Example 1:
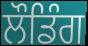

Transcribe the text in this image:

ਲੌਡਿੰਗ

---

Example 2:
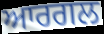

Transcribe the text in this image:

ਆਰਗਲ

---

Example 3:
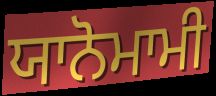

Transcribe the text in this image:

ਯਾਨੋਮਾਮੀ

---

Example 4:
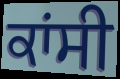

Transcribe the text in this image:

ਕਾਂਸੀ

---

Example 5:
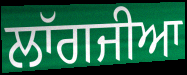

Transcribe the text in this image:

ਲਾੱਗਜੀਆ